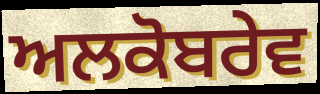
ਅਲਕੋਬਰੇਵ